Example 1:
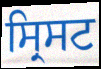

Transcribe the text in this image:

ਸ੍ਰਿਸਟ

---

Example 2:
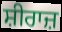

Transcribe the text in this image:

ਸ਼ੀਰਾਜ਼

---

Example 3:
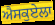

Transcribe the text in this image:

ਐਸਕੁਏਲਾ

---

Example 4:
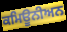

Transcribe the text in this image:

ਕਮਿਊਨੀਅਨ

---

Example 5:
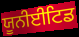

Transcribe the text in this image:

ਯੂਨੀਈਟਿਡ